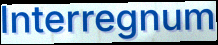
Interregnum